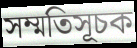
সম্মতিসূচক